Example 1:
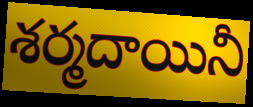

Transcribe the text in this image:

శర్మదాయినీ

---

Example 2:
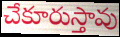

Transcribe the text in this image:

చేకూరుస్తావు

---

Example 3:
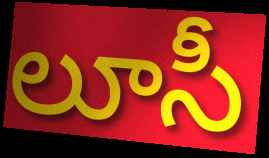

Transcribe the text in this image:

లూసీ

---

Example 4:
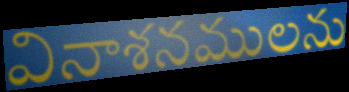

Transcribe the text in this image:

వినాశనములను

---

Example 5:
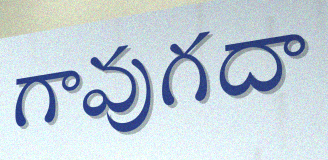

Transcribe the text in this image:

గావుగదా